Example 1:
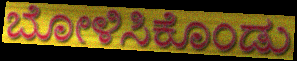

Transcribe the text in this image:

ಬೋಳಿಸಿಕೊಂಡು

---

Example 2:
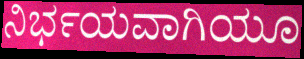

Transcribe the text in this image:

ನಿರ್ಭಯವಾಗಿಯೂ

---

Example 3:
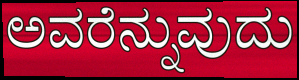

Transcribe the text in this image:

ಅವರೆನ್ನುವುದು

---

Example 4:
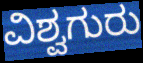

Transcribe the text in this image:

ವಿಶ್ವಗುರು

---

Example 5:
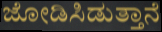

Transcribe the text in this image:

ಜೋಡಿಸಿಡುತ್ತಾನೆ